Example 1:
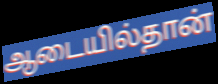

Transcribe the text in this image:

ஆடையில்தான்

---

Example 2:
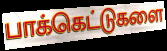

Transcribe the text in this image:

பாக்கெட்டுகளை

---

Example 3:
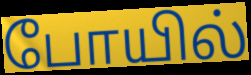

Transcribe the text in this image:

போயில்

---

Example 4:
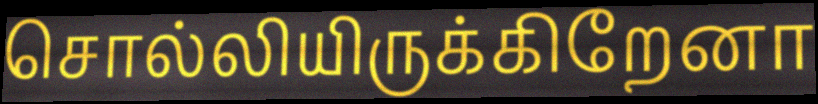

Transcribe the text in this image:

சொல்லியிருக்கிறேனா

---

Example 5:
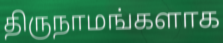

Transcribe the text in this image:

திருநாமங்களாக